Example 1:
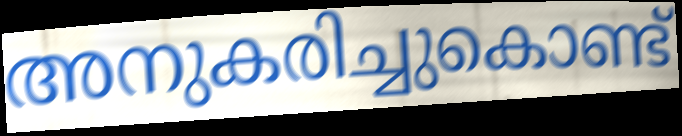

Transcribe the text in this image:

അനുകരിച്ചുകൊണ്ട്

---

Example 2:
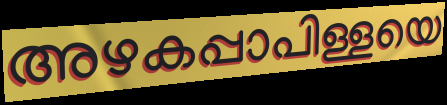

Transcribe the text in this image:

അഴകപ്പാപിള്ളയെ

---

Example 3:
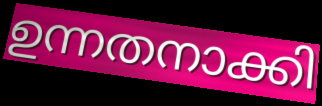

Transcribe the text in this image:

ഉന്നതനാക്കി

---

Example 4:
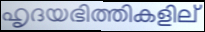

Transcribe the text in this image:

ഹൃദയഭിത്തികളില്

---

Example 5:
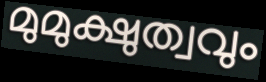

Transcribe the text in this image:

മുമുക്ഷുത്വവും